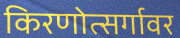
किरणोत्सर्गावर